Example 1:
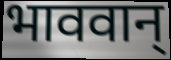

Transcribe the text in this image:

भाववान्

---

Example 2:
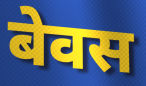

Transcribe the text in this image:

बेवस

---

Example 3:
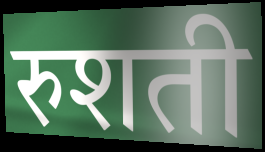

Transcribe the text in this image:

रुशती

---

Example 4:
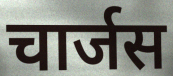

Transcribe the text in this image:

चार्जस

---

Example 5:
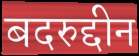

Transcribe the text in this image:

बदरुद्दीन